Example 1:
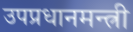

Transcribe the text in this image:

उपप्रधानमन्त्री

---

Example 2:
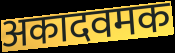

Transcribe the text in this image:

अकादवमक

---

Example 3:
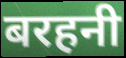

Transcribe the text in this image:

बरहनी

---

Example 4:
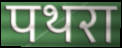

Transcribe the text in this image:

पथरा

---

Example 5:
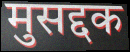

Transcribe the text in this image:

मुसद्दक